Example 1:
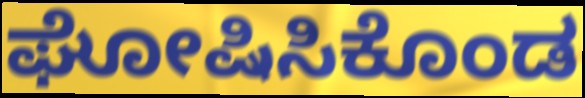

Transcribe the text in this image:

ಘೋಷಿಸಿಕೊಂಡ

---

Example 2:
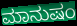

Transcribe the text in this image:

ಮಾನುಷಂ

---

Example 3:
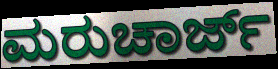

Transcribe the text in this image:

ಮರುಚಾರ್ಜ್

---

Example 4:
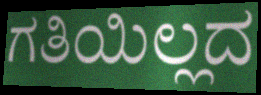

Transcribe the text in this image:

ಗತಿಯಿಲ್ಲದ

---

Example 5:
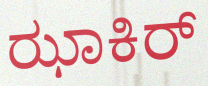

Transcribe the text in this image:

ಝಾಕಿರ್